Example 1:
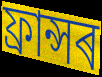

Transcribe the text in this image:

ফ্ৰান্সৰ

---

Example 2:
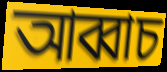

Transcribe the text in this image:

আব্বাচ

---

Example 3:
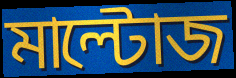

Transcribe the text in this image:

মাল্টোজ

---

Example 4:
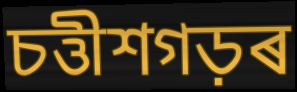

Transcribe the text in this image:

চত্তীশগড়ৰ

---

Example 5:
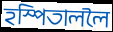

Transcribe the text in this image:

হস্পিতাললৈ